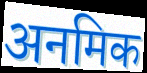
अनमिक